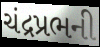
ચંદ્રપ્રભની